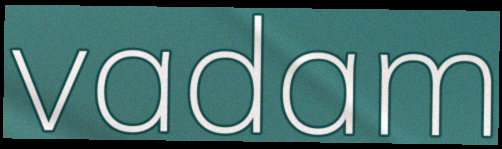
vadam